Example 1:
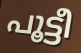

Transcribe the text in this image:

പൂട്ടീ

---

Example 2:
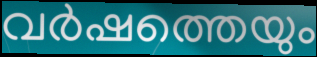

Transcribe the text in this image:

വർഷത്തെയും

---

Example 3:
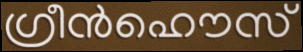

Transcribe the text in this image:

ഗ്രീൻഹൌസ്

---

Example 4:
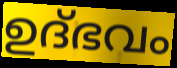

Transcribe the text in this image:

ഉദ്ഭവം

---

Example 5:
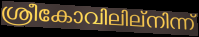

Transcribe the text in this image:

ശ്രീകോവിലില്നിന്ന്